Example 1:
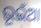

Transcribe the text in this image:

ଭୂଇଁଆ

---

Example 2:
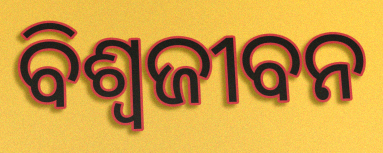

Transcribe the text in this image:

ବିଶ୍ଵଜୀବନ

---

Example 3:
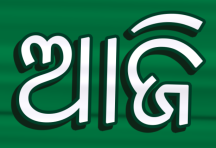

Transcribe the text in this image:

ଆଜି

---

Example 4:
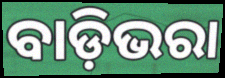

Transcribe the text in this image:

ବାଡ଼ିଭରା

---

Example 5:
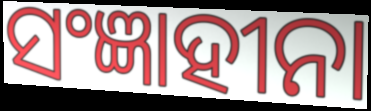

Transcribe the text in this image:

ସଂଜ୍ଞାହୀନା